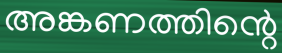
അങ്കണത്തിന്റെ